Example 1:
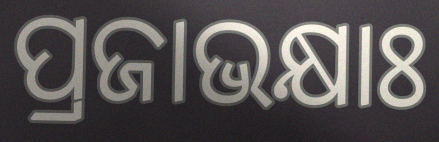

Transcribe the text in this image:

ପ୍ରଜାଭକ୍ଷାଃ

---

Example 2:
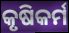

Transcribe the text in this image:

କୃଷିକର୍ମ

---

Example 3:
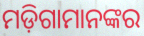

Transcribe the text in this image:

ମଡ଼ିଗାମାନଙ୍କର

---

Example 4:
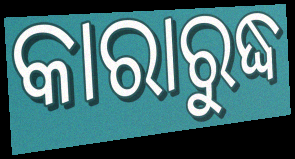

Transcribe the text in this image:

କାରାରୁଦ୍ଧ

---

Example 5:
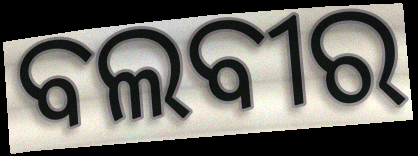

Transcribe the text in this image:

ବଲବୀର